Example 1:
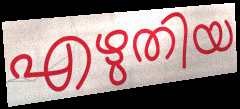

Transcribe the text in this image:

എഴുതിയ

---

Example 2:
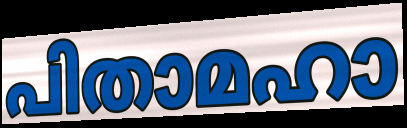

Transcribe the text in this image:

പിതാമഹാ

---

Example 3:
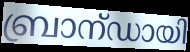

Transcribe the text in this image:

ബ്രാന്ഡായി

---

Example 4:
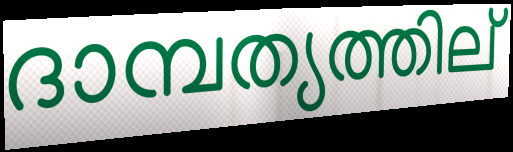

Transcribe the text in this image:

ദാമ്പത്യത്തില്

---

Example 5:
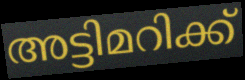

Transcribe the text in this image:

അട്ടിമറിക്ക്